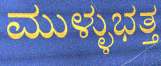
ಮುಳ್ಳುಭತ್ತ